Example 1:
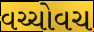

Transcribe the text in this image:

વચ્ચોવચ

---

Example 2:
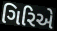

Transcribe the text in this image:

ગિરિએ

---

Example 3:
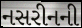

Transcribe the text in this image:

નસરીનની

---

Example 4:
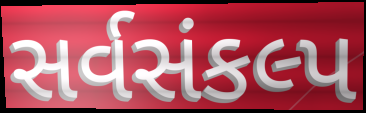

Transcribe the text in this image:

સર્વસંકલ્પ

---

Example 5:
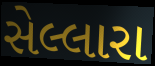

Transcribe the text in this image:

સેલ્લારા